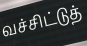
வச்சிட்டுத்